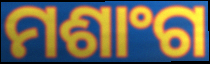
ମଶାଂଗ